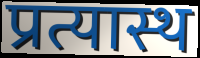
प्रत्यास्थ